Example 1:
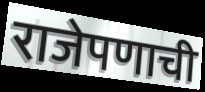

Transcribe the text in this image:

राजेपणाची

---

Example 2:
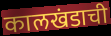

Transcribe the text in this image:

कालखंडाची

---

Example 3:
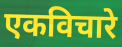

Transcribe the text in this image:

एकविचारे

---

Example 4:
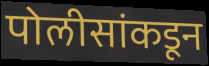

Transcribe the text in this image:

पोलीसांकडून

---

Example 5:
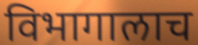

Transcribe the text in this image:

विभागालाच